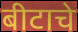
बीटाचे